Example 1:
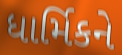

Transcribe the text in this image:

ધાર્મિકને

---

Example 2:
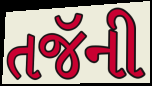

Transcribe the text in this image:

તજૅની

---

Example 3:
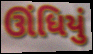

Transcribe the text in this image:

ઊંધિયું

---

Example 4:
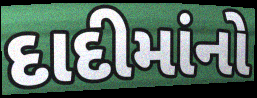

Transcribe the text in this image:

દાદીમાંનો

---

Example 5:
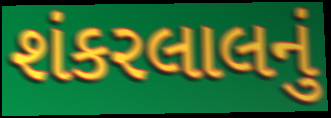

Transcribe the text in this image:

શંકરલાલનું